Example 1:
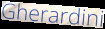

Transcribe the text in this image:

Gherardini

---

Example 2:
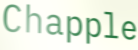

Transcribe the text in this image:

Chapple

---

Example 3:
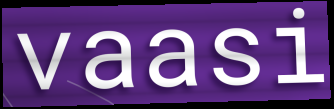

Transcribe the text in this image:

vaasi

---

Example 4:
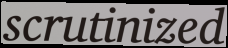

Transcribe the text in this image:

scrutinized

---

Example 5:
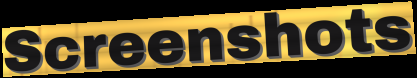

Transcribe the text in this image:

Screenshots